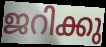
ജറിക്കു